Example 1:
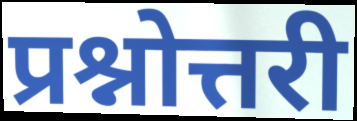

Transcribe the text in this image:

प्रश्नोत्तरी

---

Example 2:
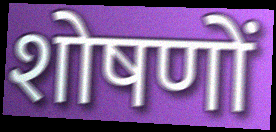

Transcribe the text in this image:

शोषणों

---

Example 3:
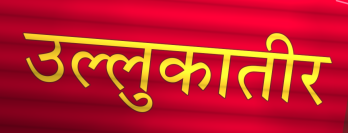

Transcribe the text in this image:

उल्लुकातीर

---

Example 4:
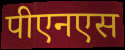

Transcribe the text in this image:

पीएनएस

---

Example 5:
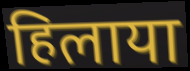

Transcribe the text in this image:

हिलाया